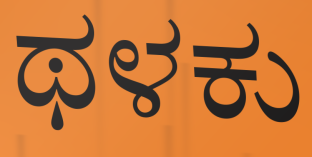
ಥಳಕು